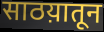
साठय़ातून